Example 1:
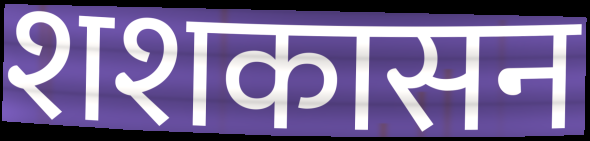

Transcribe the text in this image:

शशकासन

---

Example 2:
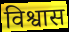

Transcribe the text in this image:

विश्वास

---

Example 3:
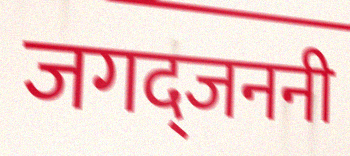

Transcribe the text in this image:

जगद्जननी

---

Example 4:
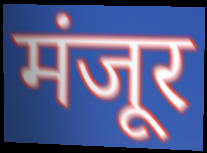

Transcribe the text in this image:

मंजूर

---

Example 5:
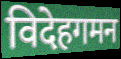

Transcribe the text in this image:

विदेहगमन